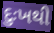
દુઃખથી